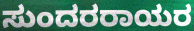
ಸುಂದರರಾಯರ